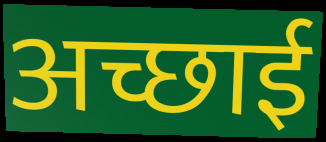
अच्छाई